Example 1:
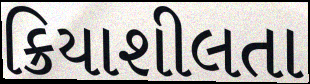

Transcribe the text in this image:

ક્રિયાશીલતા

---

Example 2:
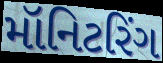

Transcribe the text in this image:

મૉનિટરિંગ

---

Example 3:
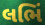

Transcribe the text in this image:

લભિં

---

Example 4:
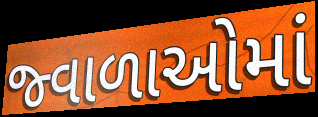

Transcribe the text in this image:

જ્વાળાઓમાં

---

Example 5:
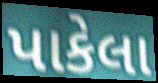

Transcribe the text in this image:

પાકેલા